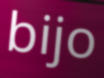
bijo